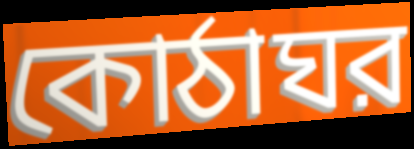
কোঠাঘর